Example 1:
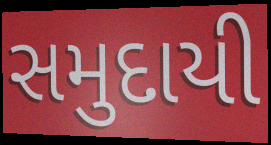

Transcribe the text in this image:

સમુદાયી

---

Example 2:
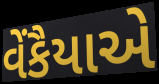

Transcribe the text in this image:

વેંકૈયાએ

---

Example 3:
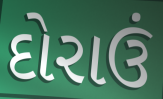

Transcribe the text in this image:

દોરાઉં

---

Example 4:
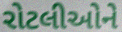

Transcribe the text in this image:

રોટલીઓને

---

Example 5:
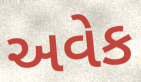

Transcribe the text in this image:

અવેક